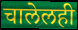
चालेलही